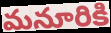
మనూరికి